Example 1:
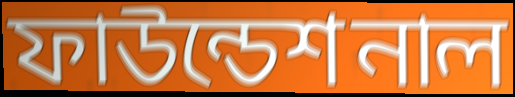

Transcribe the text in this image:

ফাউন্ডেশনাল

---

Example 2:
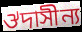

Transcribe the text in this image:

ঔদাসীন্য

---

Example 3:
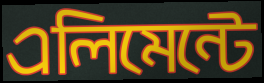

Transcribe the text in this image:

এলিমেন্টে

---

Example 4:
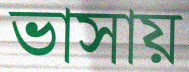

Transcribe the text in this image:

ভাসায়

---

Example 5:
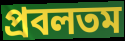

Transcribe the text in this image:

প্রবলতম